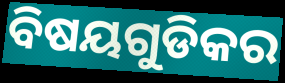
ବିଷୟଗୁଡିକର